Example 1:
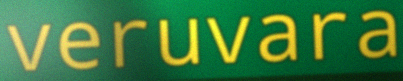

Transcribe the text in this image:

veruvara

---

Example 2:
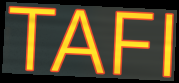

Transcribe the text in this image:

TAFI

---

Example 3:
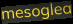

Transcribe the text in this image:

mesoglea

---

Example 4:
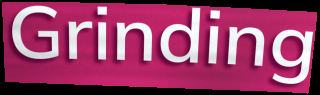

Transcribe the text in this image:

Grinding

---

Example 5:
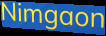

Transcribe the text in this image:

Nimgaon